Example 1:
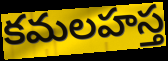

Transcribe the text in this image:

కమలహస్త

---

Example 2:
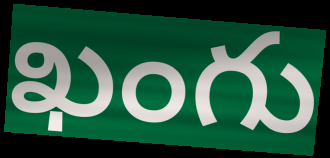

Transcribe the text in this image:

ఖంగు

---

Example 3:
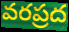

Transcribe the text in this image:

వరప్రద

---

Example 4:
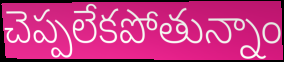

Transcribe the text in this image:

చెప్పలేకపోతున్నాం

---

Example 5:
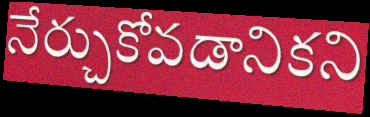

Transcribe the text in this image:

నేర్చుకోవడానికని